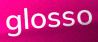
glosso